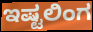
ಇಷ್ಟಲಿಂಗ